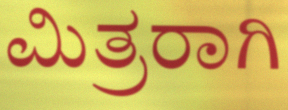
ಮಿತ್ರರಾಗಿ